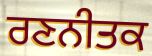
ਰਣਨੀਤਕ